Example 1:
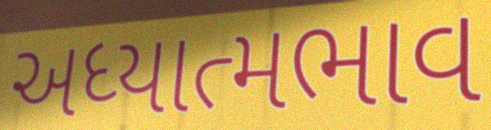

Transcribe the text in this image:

અધ્યાત્મભાવ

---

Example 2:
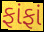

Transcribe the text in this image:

ફાંફાં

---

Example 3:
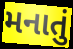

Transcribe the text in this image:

મનાતું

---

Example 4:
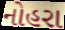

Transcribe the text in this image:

નોહરા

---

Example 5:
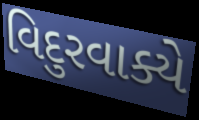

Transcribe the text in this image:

વિદુરવાક્યે